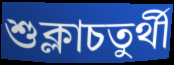
শুক্লাচতুৰ্থী